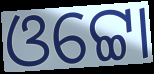
ଓଟ୍ଟୋ